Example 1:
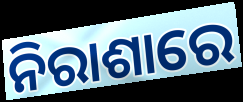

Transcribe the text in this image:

ନିରାଶାରେ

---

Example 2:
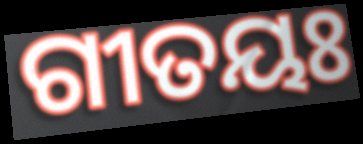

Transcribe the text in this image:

ଗୀତୟଃ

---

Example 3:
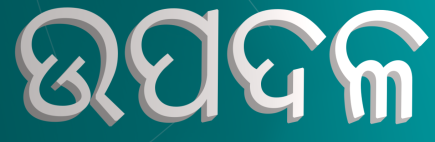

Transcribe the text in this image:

ଉପଦଳ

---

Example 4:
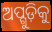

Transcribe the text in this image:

ଅପ୍ଗୁଡ଼ିକୁ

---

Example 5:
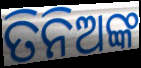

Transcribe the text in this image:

ତିନିଅଙ୍କ